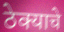
ठेक्याचे